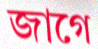
জাগে